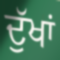
ਦੁੱਖਾਂ